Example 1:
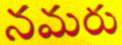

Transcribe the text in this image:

నమరు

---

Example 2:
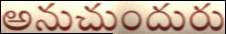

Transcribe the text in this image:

అనుచుందురు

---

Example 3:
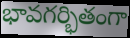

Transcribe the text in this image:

భావగర్భితంగా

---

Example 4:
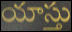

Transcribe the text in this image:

యాస్తు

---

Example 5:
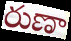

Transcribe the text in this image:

రుణా